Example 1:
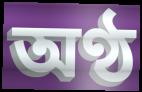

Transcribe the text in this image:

অণ্ঠ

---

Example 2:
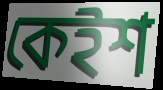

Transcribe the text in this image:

কেইশ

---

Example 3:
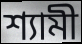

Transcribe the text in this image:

শ্যামী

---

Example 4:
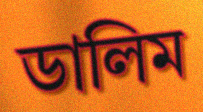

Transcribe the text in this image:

ডালিম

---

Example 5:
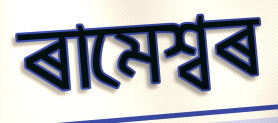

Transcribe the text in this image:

ৰামেশ্বৰ